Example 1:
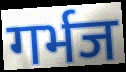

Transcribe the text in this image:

गर्भज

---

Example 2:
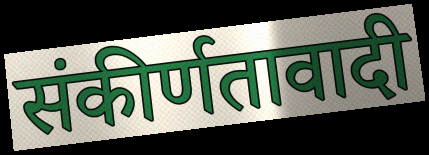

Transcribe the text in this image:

संकीर्णतावादी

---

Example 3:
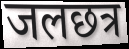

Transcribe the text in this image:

जलछत्र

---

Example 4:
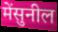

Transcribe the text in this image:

मेंसुनील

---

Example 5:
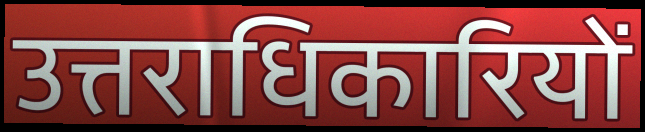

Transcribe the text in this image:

उत्तराधिकारियों